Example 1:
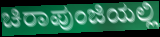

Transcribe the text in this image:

ಚಿರಾಪುಂಜಿಯಲ್ಲಿ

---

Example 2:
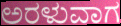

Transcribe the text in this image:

ಅರಳುವಾಗ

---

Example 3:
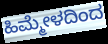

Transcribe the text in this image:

ಹಿಮ್ಮೇಳದಿಂದ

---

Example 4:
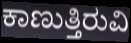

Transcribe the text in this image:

ಕಾಣುತ್ತಿರುವಿ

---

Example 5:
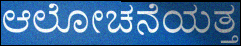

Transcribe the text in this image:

ಆಲೋಚನೆಯತ್ತ